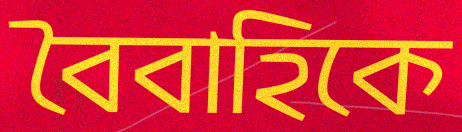
বৈবাহিকে